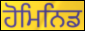
ਹੋਮਿਨਿਡ